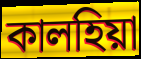
কালহিয়া